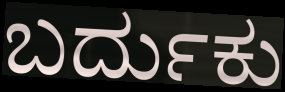
ಬರ್ದುಕು